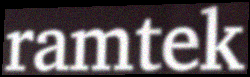
ramtek